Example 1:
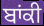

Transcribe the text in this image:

ਬਾਂਕੀ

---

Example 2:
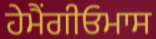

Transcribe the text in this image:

ਹੇਮੈਂਗੀਓਮਾਸ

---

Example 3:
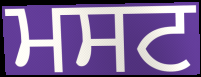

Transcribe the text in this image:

ਮਸਟ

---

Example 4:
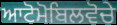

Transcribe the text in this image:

ਆਟੋਮੋਬਿਲਵੋਚੇ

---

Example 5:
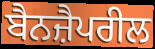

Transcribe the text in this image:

ਬੈਨਜ਼ੈਪਰੀਲ